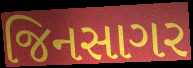
જિનસાગર